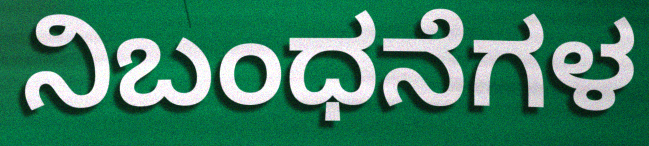
ನಿಬಂಧನೆಗಳ